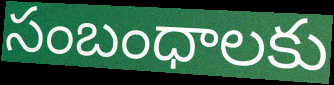
సంబంధాలకు